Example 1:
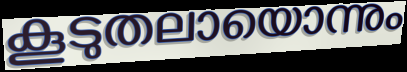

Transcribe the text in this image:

കൂടുതലായൊന്നും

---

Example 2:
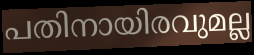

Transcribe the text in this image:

പതിനായിരവുമല്ല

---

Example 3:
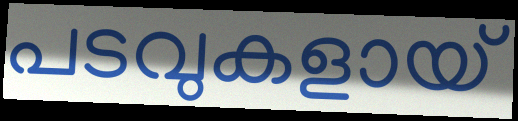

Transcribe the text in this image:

പടവുകളായ്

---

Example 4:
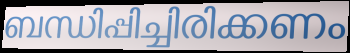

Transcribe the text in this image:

ബന്ധിപ്പിച്ചിരിക്കണം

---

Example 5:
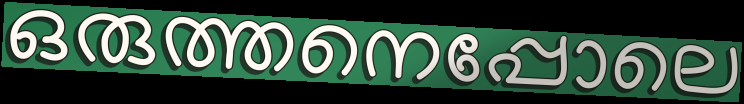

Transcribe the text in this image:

ഒരുത്തനെപ്പോലെ